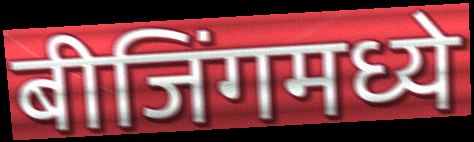
बीजिंगमध्ये